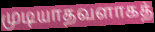
முடியாதவளாகத்